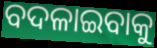
ବଦଳାଇବାକୁ